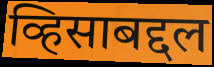
व्हिसाबद्दल